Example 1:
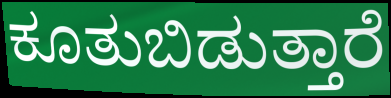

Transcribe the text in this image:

ಕೂತುಬಿಡುತ್ತಾರೆ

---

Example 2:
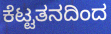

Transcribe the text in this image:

ಕೆಟ್ಟತನದಿಂದ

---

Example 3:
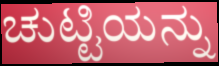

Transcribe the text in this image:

ಚುಟ್ಟಿಯನ್ನು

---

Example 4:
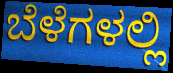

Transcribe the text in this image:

ಬೆಳೆಗಳಲ್ಲಿ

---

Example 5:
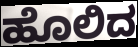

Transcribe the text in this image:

ಹೊಲಿದ